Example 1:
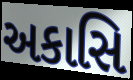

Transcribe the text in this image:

અકાસિ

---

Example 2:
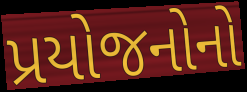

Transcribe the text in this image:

પ્રયોજનોનો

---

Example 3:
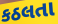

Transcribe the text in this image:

કઠલતા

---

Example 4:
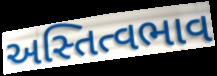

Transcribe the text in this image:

અસ્તિત્વભાવ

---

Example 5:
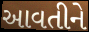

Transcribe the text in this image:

આવતીને